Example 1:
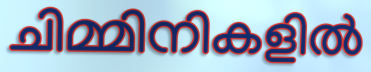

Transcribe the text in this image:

ചിമ്മിനികളിൽ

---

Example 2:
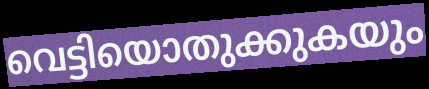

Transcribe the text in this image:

വെട്ടിയൊതുക്കുകയും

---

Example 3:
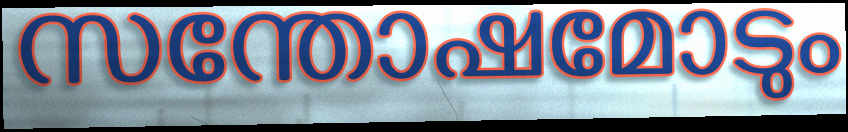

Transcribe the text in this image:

സന്തോഷമോടും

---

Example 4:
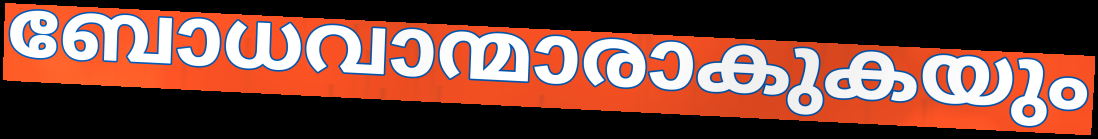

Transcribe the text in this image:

ബോധവാന്മാരാകുകയും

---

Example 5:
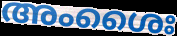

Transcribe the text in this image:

അംശൈഃ